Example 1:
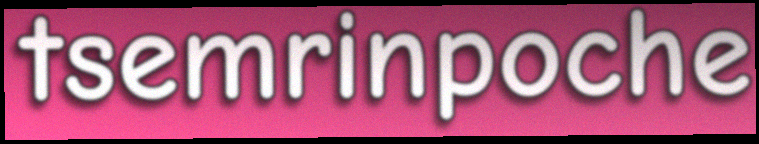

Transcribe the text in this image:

tsemrinpoche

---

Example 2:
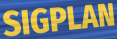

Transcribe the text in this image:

SIGPLAN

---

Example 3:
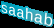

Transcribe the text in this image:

saahab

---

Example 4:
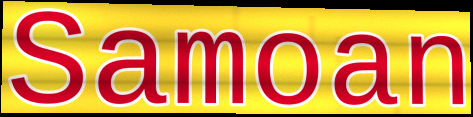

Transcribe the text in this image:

Samoan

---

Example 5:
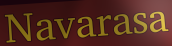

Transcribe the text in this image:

Navarasa